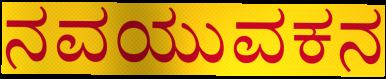
ನವಯುವಕನ